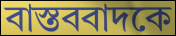
বাস্তববাদকে